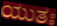
ಯುತಃ